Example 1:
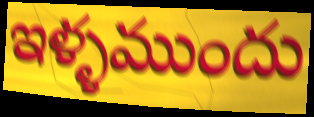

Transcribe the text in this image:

ఇళ్ళముందు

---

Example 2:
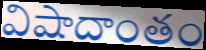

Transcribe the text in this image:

విషాదాంతం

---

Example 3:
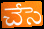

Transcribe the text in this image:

చేసె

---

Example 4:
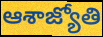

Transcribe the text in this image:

ఆశాజ్యోతి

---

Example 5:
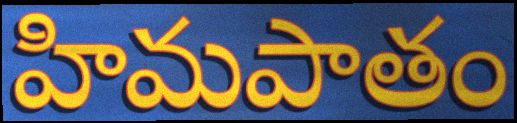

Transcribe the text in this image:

హిమపాతం